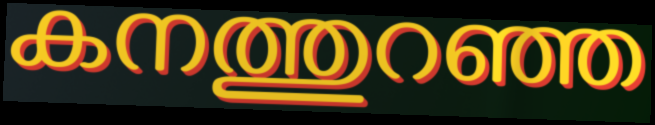
കനത്തുറഞ്ഞ